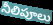
నీలిపూలు